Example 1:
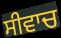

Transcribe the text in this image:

ਸੀਵਾਚ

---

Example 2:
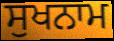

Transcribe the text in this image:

ਸੁਖਨਾਮ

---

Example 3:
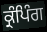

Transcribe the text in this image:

ਕ੍ਰੰਪਿੰਗ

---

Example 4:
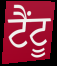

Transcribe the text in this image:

ਟੈਂਟੂ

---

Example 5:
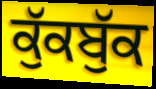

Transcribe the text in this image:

ਕੁੱਕਬੁੱਕ